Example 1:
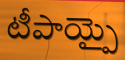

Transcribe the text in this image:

టీపాయ్పై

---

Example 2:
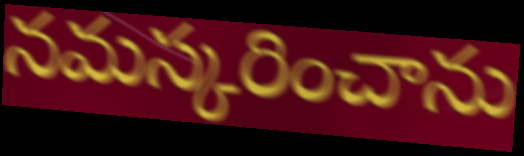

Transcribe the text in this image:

నమస్కరించాను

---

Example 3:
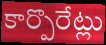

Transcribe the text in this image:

కార్పొరేట్లు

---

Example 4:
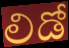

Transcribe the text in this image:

లిడో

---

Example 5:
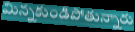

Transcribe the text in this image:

మిన్నకుండిపోతున్నారు